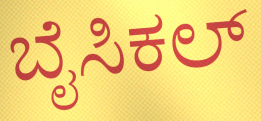
ಬೈಸಿಕಲ್